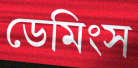
ডেমিংস